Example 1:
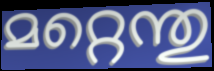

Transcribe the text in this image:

മറ്റെന്തു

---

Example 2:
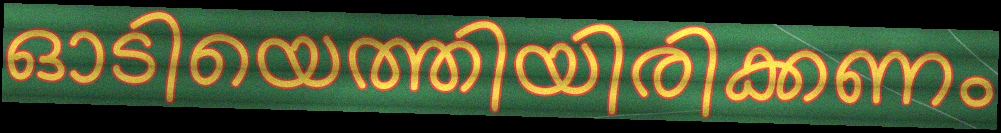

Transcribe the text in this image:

ഓടിയെത്തിയിരിക്കണം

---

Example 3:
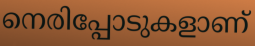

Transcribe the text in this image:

നെരിപ്പോടുകളാണ്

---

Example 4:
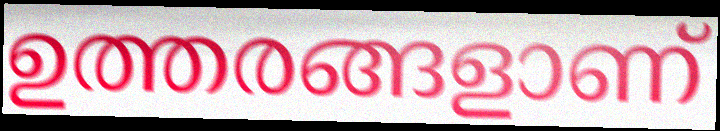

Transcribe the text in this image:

ഉത്തരങ്ങളാണ്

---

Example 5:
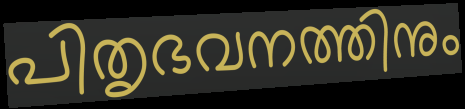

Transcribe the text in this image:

പിതൃഭവനത്തിനും